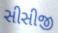
સીસીજી